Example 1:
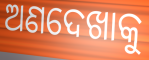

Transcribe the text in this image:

ଅଣଦେଖାକୁ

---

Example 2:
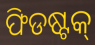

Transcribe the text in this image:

ଫିଡଷ୍ଟକ୍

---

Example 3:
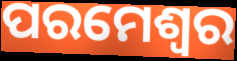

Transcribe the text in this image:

ପରମେଶ୍ବର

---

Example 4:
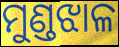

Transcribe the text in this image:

ମୁଣ୍ଡଝାଳ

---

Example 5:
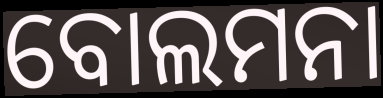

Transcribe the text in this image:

ବୋଲମନା